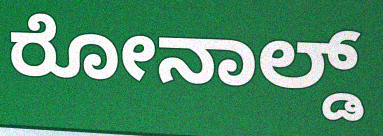
ರೋನಾಲ್ಡ್